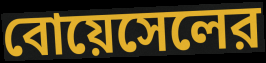
বোয়েসেলের